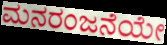
ಮನರಂಜನೆಯೇ